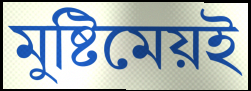
মুষ্টিমেয়ই